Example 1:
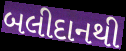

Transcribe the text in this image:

બલીદાનથી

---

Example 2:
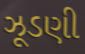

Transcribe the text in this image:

ઝૂડણી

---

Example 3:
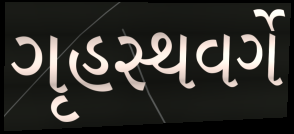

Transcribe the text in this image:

ગૃહસ્થવર્ગે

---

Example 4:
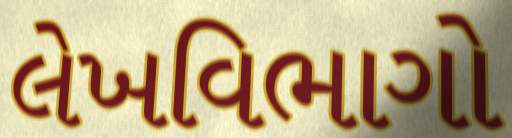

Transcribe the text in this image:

લેખવિભાગો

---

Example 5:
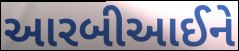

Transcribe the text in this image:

આરબીઆઈને